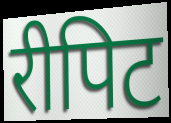
रीपिट